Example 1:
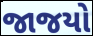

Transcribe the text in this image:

જાજયો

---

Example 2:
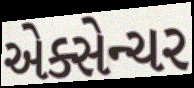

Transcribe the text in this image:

એક્સેન્ચર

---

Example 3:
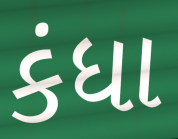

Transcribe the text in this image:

કંધા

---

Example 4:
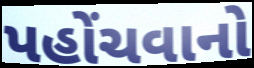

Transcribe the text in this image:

પહોંચવાનો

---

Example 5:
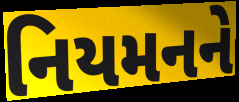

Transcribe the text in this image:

નિયમનને